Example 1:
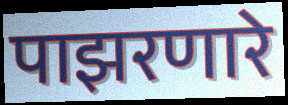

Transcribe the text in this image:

पाझरणारे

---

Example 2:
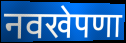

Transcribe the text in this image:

नवखेपणा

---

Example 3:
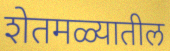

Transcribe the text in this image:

शेतमळ्यातील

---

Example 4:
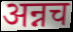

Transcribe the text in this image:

अन्नच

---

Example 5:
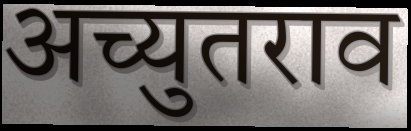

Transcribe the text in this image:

अच्युतराव